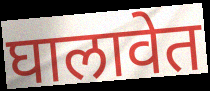
घालावेत